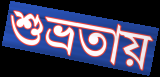
শুভ্রতায়